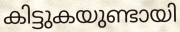
കിട്ടുകയുണ്ടായി